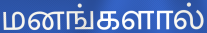
மனங்களால்